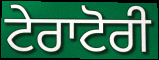
ਟੇਰਾਟੋਰੀ